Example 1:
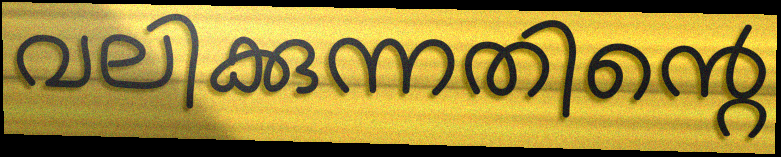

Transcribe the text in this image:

വലിക്കുന്നതിന്റെ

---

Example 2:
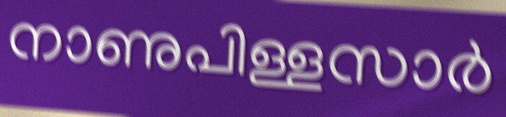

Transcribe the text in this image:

നാണുപിള്ളസാർ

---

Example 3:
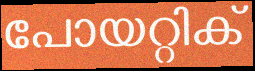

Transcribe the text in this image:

പോയറ്റിക്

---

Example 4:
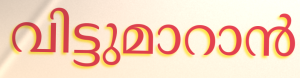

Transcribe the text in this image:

വിട്ടുമാറാൻ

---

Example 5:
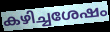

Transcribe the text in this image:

കഴിച്ചശേഷം